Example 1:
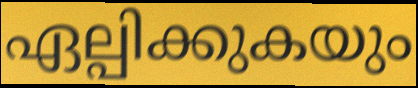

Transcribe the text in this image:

ഏല്പിക്കുകയും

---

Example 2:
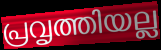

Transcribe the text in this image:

പ്രവൃത്തിയല്ല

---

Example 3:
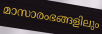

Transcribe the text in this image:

മാസാരംഭങ്ങളിലും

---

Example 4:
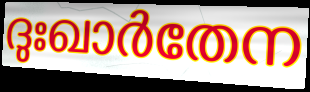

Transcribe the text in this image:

ദുഃഖാർതേന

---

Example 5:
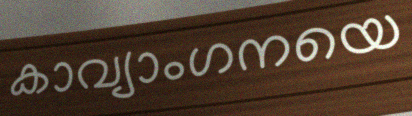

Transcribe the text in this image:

കാവ്യാംഗനയെ